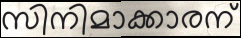
സിനിമാക്കാരന്